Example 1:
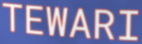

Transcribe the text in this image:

TEWARI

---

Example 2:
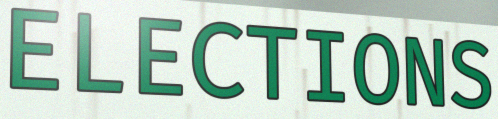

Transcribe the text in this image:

ELECTIONS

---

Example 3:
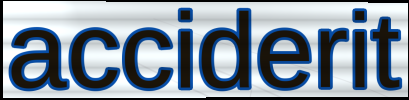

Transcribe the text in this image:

acciderit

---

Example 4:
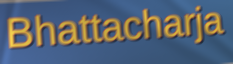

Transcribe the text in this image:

Bhattacharja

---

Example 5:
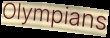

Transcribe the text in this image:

Olympians